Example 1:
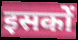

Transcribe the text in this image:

इसकों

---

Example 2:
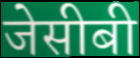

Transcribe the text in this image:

जेसीबी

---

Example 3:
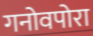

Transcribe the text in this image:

गनोवपोरा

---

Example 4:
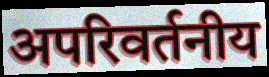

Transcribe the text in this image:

अपरिवर्तनीय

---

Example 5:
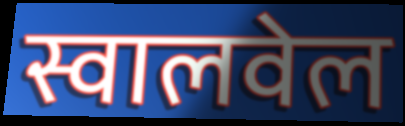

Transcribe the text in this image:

स्वालवेल